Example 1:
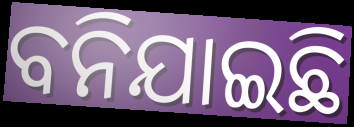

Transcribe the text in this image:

ବନିଯାଇଛି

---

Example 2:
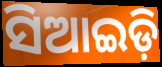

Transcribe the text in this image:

ସିଆଇଡ଼ି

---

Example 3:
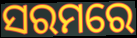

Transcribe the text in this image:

ସରମରେ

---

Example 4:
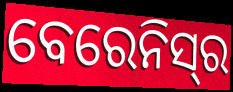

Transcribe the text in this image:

ବେରେନିସ୍‌ର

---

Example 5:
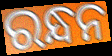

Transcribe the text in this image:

ରନ୍ଧନ